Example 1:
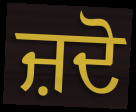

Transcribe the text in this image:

ਜ਼ਦੋ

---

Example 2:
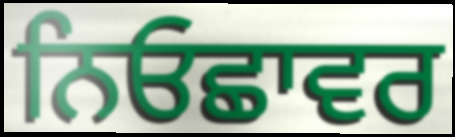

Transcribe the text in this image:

ਨਿਓਛਾਵਰ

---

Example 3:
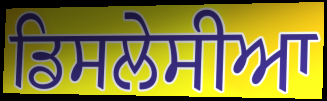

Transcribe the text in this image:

ਡਿਸਲੇਸੀਆ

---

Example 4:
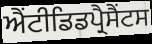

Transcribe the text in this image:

ਐਂਟੀਡਿਡਪ੍ਰੈਸੈਂਟਸ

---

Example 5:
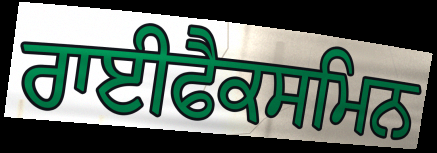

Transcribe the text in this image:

ਰਾਈਫੈਕਸਮਿਨ